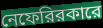
নেফেরিরকারে